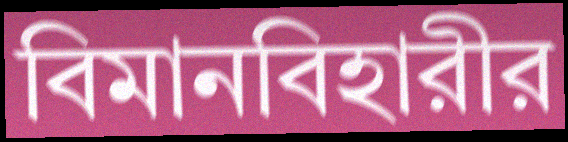
বিমানবিহারীর